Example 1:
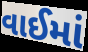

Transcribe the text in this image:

વાઈમાં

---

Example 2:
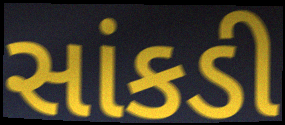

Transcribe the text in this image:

સાંકડી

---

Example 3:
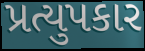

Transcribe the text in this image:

પ્રત્યુપકાર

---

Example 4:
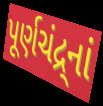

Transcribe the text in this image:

પૂર્ણચંદ્ર્નાં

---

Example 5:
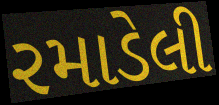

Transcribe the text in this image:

રમાડેલી